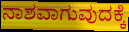
ನಾಶವಾಗುವುದಕ್ಕೆ